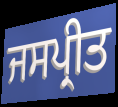
ਜਸਪ੍ਰੀਤ